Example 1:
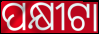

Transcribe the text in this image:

ପକ୍ଷୀଟା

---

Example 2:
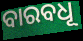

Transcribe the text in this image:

ବାରବଧୂ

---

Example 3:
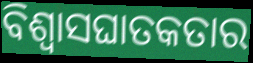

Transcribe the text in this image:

ବିଶ୍ୱାସଘାତକତାର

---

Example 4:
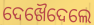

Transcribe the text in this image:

ଦେଖୈଦେଲେ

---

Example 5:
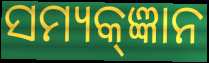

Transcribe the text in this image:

ସମ୍ୟକ୍‌ଜ୍ଞାନ